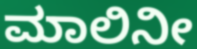
ಮಾಲಿನೀ